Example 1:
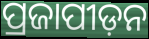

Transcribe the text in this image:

ପ୍ରଜାପୀଡ଼ନ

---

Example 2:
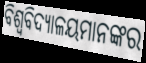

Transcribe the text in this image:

ବିଶ୍ଵବିଦ୍ୟାଳୟମାନଙ୍କର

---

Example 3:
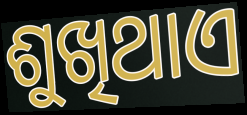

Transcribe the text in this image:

ଶୁଖିଥାଏ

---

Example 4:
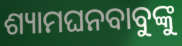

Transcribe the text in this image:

ଶ୍ୟାମଘନବାବୁଙ୍କୁ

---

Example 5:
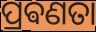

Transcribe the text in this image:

ପ୍ରଵଣତା